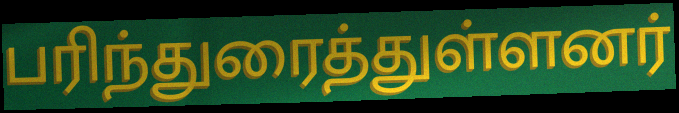
பரிந்துரைத்துள்ளனர்